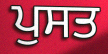
ਪੁਸਤ